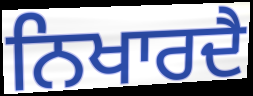
ਨਿਖਾਰਦੈ